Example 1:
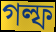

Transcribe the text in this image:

গল্ফ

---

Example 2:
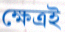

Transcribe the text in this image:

ক্ষেত্রই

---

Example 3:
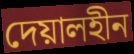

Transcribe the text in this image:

দেয়ালহীন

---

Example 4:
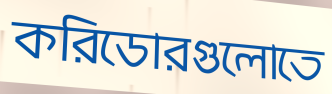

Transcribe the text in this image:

করিডোরগুলোতে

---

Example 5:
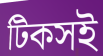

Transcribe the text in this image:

টিকসই